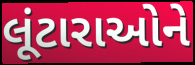
લૂંટારાઓને